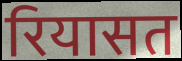
रियासत